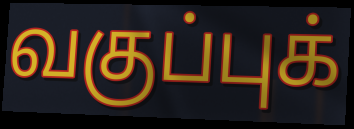
வகுப்புக்